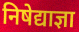
निषेद्याज्ञा